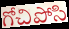
గోచిపోసి